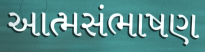
આત્મસંભાષણ